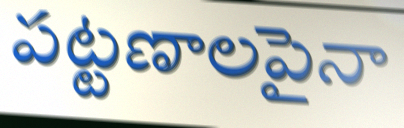
పట్టణాలపైనా